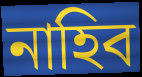
নাহিব